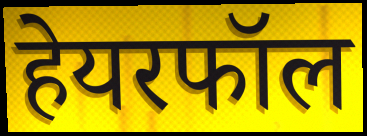
हेयरफॉल